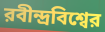
রবীন্দ্রবিশ্বের